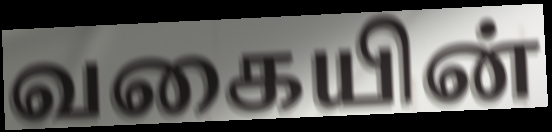
வகையின்